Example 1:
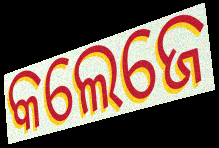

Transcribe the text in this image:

କଲେଜେ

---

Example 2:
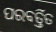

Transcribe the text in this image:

ପରବର୍ତ୍ତିତ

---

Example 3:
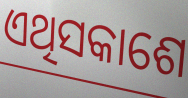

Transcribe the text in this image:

ଏଥିସକାଶେ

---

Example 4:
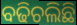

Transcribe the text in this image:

ବଢିଚଲିଛି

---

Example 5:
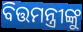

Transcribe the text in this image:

ବିତ୍ତମନ୍ତ୍ରୀଙ୍କୁ